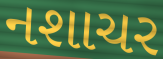
નશાચર